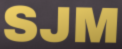
SJM